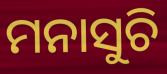
ମନାସୁଚି